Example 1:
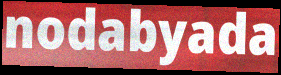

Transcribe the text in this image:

nodabyada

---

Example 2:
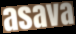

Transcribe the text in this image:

asava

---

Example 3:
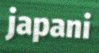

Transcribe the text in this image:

japani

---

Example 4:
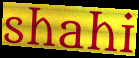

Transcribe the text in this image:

shahi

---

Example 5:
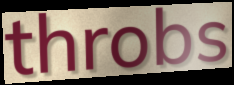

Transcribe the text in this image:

throbs